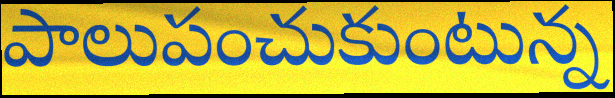
పాలుపంచుకుంటున్న